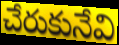
చేరుకునేవి